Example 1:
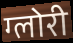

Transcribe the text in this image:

ग्लोरी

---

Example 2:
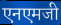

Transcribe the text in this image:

एनएमजी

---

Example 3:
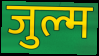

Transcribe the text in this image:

जुल्म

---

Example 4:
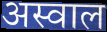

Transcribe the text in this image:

अस्वाल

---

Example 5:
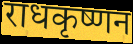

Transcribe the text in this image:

राधकृष्णन